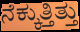
ನೆಕ್ಕುತ್ತಿತ್ತು